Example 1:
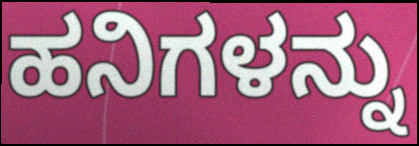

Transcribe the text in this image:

ಹನಿಗಳನ್ನು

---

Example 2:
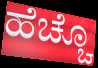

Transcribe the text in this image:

ಹೆಚ್ಚೊ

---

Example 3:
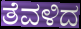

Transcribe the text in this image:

ತೆವಳಿದ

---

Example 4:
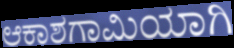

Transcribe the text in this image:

ಆಕಾಶಗಾಮಿಯಾಗಿ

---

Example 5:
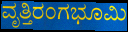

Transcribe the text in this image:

ವೃತ್ತಿರಂಗಭೂಮಿ